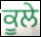
ਕੂਲੇ